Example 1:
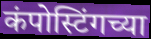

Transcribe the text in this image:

कंपोस्टिंगच्या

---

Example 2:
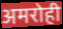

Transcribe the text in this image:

अमरोही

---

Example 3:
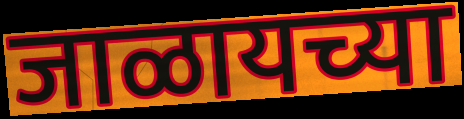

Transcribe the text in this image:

जाळायच्या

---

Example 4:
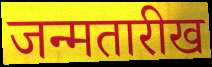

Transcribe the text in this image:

जन्मतारीख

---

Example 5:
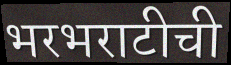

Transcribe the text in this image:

भरभराटीची